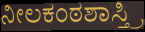
ನೀಲಕಂಠಶಾಸ್ತ್ರಿ